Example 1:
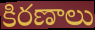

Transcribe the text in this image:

కిరణాలు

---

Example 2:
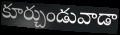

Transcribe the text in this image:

కూర్చుండువాడా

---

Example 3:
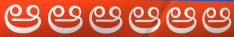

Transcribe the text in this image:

ఆఆఆఆఆఆ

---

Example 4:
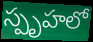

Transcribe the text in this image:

స్పృహలో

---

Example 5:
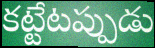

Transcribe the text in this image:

కట్టేటప్పుడు